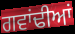
ਗਵਾਂਢੀਆਂ